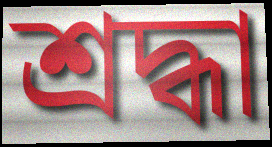
শ্রদ্ধা